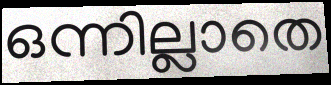
ഒന്നില്ലാതെ